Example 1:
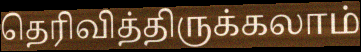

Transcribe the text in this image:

தெரிவித்திருக்கலாம்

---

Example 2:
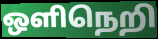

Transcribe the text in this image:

ஒளிநெறி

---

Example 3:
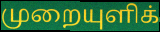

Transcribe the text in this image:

முறையுளிக்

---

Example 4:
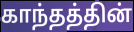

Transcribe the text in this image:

காந்தத்தின்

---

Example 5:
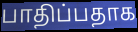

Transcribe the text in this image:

பாதிப்பதாக